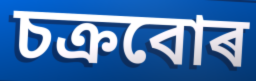
চক্ৰবোৰ